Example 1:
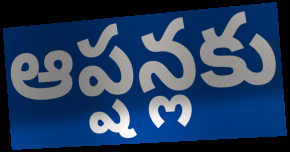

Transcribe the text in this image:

ఆప్షన్లకు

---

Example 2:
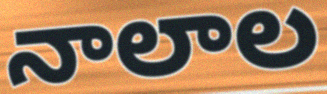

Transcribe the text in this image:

నాలాల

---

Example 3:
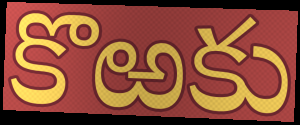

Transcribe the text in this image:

కొఱకు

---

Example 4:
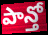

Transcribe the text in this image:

పాన్తో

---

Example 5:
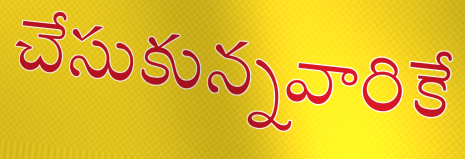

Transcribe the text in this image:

చేసుకున్నవారికే